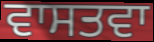
ਵਾਸਤਵਾ